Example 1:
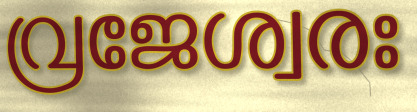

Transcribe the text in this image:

വ്രജേശ്വരഃ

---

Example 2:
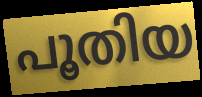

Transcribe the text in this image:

പൂതിയ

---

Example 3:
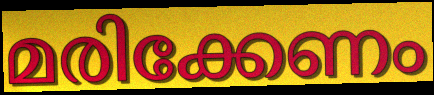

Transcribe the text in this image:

മരിക്കേണം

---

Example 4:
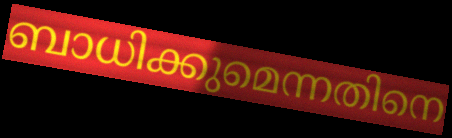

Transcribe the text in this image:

ബാധിക്കുമെന്നതിനെ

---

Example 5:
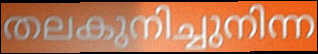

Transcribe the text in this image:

തലകുനിച്ചുനിന്ന